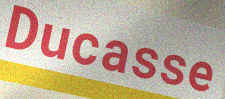
Ducasse